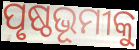
ପୃଷ୍ଠଭୂମୀକୁ